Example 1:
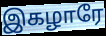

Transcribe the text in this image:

இகழாரே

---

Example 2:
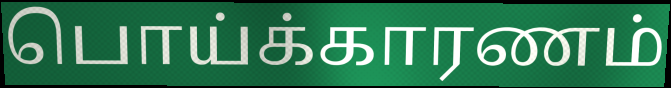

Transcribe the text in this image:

பொய்க்காரணம்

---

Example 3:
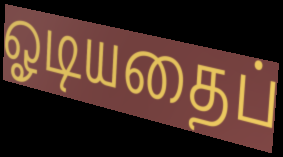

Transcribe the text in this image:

ஓடியதைப்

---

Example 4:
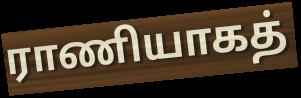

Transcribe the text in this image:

ராணியாகத்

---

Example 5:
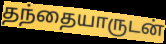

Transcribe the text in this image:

தந்தையாருடன்